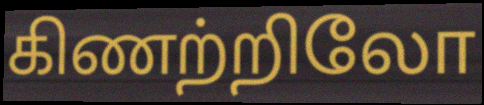
கிணற்றிலோ